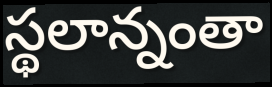
స్థలాన్నంతా